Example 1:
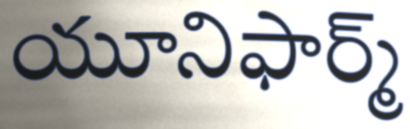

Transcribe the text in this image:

యూనిఫార్మ్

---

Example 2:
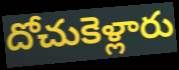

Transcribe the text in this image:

దోచుకెళ్లారు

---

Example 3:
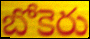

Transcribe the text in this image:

బోకెరు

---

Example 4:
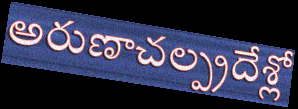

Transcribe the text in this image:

అరుణాచల్ప్రదేశ్లో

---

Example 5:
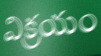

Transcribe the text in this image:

విక్రయం